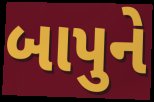
બાપુને